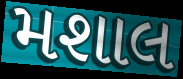
મશાલ